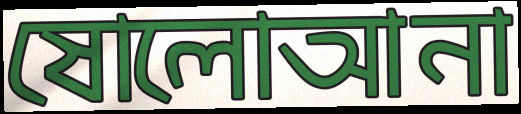
ষোলোআনা